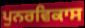
ਪੁਨਰਵਿਕਾਸ